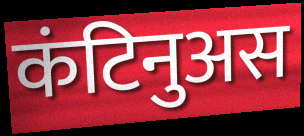
कंटिनुअस